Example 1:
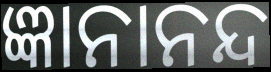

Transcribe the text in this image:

ଜ୍ଞାନାନନ୍ଦ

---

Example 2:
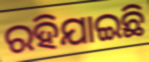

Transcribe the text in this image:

ରହିଯାଇଛି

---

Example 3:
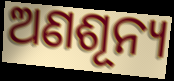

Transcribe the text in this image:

ଅଣଶୂନ୍ୟ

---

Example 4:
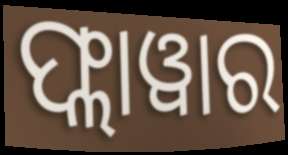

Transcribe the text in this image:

ଫ୍ଲାୱାର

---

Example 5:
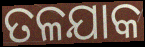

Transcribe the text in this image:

ତଳଯାକ